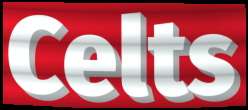
Celts